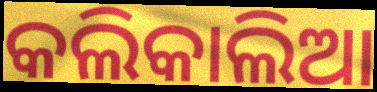
କଲିକାଲିଆ